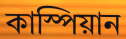
কাস্পিয়ান